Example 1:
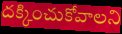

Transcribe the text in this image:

దక్కించుకోవాలని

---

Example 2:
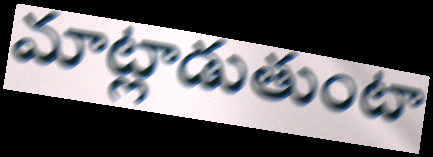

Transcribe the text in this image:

మాట్లాడుతుంటా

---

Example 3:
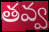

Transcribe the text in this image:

తవ్వ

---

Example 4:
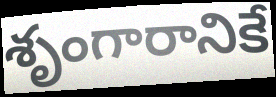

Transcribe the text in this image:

శృంగారానికే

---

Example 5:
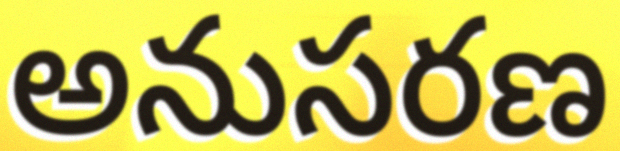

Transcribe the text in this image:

అనుసరణ